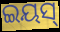
ଇୟସ୍